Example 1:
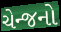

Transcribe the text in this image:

ચેન્જનો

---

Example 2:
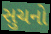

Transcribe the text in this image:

સુચનો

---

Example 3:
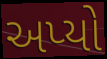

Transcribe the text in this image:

અપ્યો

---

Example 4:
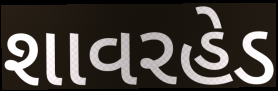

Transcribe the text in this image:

શાવરહેડ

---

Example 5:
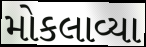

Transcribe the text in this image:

મોકલાવ્યા